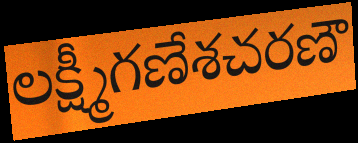
లక్ష్మీగణేశచరణౌ